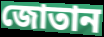
জোতান